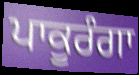
ਪਾਕੂਰੰਗਾ